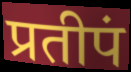
प्रतीपं